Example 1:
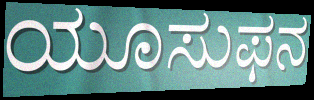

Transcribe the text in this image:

ಯೂಸುಫನ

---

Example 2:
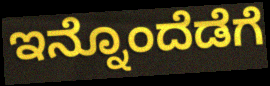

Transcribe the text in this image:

ಇನ್ನೊಂದೆಡೆಗೆ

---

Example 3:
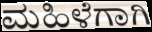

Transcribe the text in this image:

ಮಹಿಳೆಗಾಗಿ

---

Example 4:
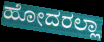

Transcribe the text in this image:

ಹೋದರಲ್ಲಾ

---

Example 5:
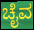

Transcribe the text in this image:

ಚೈವ